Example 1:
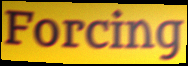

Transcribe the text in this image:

Forcing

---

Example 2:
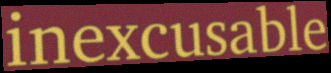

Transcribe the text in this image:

inexcusable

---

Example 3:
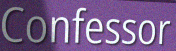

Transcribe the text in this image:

Confessor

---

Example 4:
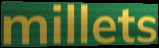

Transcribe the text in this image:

millets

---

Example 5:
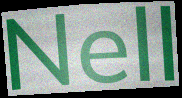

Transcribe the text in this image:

Nell